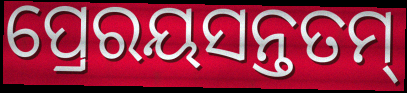
ପ୍ରେରୟସନ୍ତତମ୍